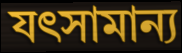
যৎসামান্য